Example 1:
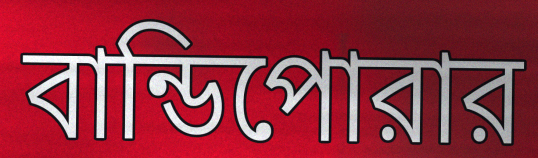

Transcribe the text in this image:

বান্ডিপোরার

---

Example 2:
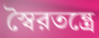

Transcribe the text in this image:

স্বৈরতন্ত্রে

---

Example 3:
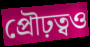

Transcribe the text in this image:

প্রৌঢ়ত্বও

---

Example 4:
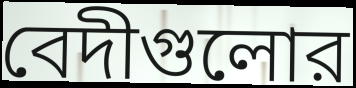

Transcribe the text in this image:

বেদীগুলোর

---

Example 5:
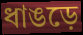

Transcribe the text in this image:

ধাঙড়ে